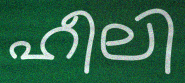
ഹീലി